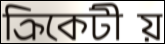
ক্রিকেটীয়